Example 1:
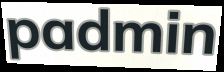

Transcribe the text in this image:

padmin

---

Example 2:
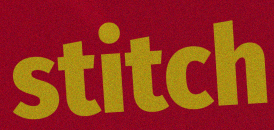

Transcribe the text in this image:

stitch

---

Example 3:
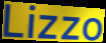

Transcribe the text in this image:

Lizzo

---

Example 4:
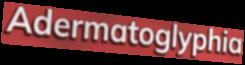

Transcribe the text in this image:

Adermatoglyphia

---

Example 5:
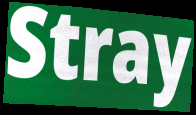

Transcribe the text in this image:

Stray